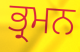
ਭ੍ਰਮਨ